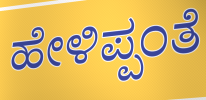
ಹೇಳಿಪ್ಪಂತೆ